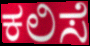
ಕಲಿಸೆ